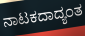
ನಾಟಕದಾದ್ಯಂತ